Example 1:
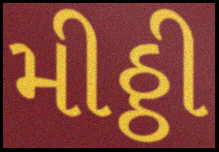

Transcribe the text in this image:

મીઠ્ઠી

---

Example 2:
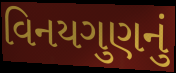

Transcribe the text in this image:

વિનયગુણનું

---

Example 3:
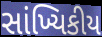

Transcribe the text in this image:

સાંખ્યિકીય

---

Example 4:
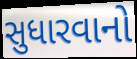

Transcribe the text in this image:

સુધારવાનો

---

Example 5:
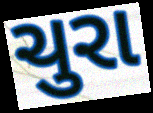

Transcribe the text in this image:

ચુરા